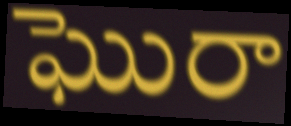
ఘొరా